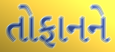
તોફાનને